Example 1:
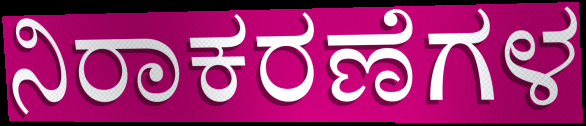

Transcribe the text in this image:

ನಿರಾಕರಣೆಗಳ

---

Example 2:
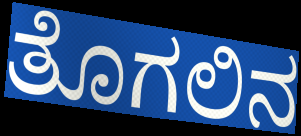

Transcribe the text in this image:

ತೊಗಲಿನ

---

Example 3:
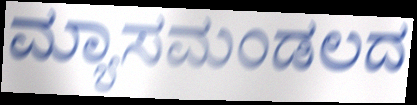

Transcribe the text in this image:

ಮ್ಯಾಸಮಂಡಲದ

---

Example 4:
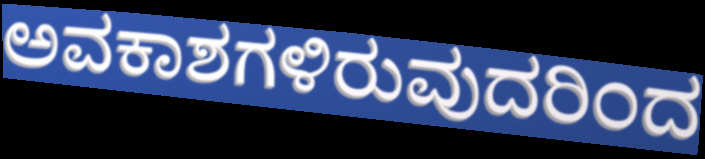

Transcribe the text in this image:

ಅವಕಾಶಗಳಿರುವುದರಿಂದ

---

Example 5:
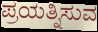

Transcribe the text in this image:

ಪ್ರಯತ್ನಿಸುವ